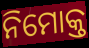
ନିମୋକ୍ତ